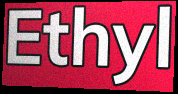
Ethyl